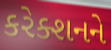
કરેક્શનને